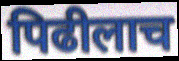
पिढीलाच